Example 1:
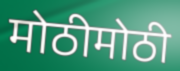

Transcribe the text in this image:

मोठीमोठी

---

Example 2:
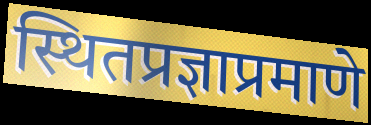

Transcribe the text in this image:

स्थितप्रज्ञाप्रमाणे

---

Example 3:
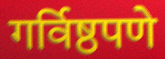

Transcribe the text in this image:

गर्विष्ठपणे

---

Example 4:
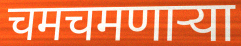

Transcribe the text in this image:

चमचमणार्‍या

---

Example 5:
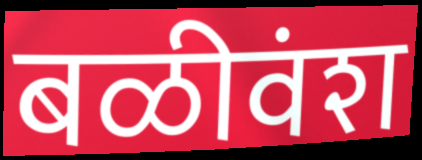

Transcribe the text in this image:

बळीवंश